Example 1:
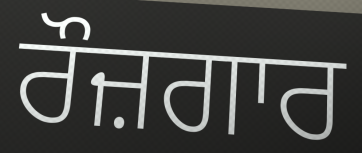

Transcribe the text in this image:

ਰੌਜ਼ਗਾਰ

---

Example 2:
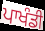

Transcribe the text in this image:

ਪਾਖੰਡੀ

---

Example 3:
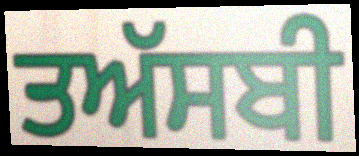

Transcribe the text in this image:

ਤਅੱਸਬੀ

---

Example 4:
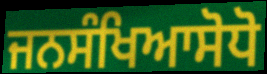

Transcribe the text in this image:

ਜਨਸੰਖਿਆਸੋਧੋ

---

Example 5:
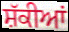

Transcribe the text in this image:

ਸ਼ੱਕੀਆਂ